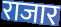
राजार